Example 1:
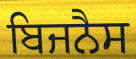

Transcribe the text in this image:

ਬਿਜਨੈਸ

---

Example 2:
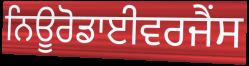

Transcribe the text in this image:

ਨਿਊਰੋਡਾਈਵਰਜੈਂਸ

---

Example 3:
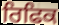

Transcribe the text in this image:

ਰਿਫਿਕ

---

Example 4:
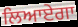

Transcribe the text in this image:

ਲਿਆਏਗਾ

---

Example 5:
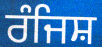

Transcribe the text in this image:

ਰੰਜਿਸ਼